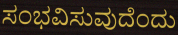
ಸಂಭವಿಸುವುದೆಂದು